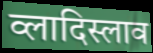
व्लादिस्लाव